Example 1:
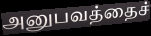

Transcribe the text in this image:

அனுபவத்தைச்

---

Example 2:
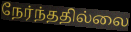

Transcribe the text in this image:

நேர்ந்ததில்லை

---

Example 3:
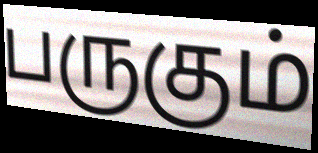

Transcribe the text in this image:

பருகும்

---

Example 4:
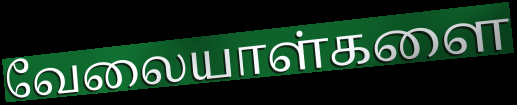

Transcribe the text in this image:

வேலையாள்களை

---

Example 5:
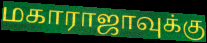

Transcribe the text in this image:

மகாராஜாவுக்கு